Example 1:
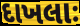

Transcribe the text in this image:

દાખલાઃ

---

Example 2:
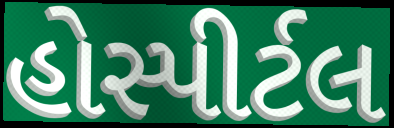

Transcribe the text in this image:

હોસ્પીર્ટલ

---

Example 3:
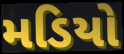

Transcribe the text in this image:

મડિયો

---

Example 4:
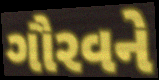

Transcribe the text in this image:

ગૌરવને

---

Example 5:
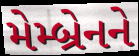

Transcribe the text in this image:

મેમ્બ્રેનને